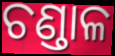
ଚଣ୍ଡାଳ